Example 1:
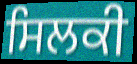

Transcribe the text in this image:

ਸਿਲਕੀ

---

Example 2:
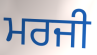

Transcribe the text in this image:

ਮਰਜੀ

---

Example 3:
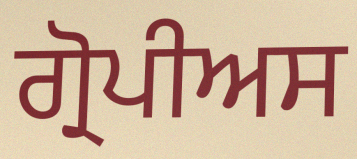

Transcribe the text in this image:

ਗ੍ਰੋਪੀਅਸ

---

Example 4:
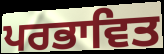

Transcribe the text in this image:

ਪਰਭਾਵਿਤ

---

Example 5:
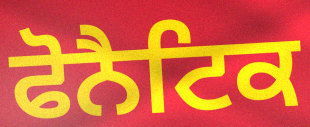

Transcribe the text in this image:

ਫੋਨੈਟਿਕ